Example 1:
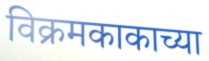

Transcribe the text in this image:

विक्रमकाकाच्या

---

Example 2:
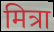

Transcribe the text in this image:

मित्रा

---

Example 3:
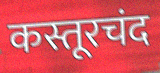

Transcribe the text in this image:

कस्तूरचंद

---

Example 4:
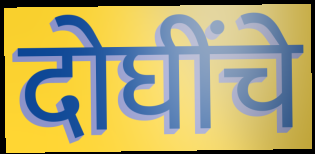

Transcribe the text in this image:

दोघींचे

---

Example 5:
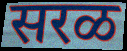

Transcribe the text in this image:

सरळ